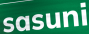
sasuni